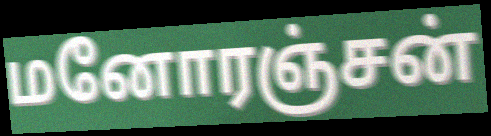
மனோரஞ்சன்